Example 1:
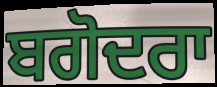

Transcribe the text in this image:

ਬਗੋਦਰਾ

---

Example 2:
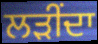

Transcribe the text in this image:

ਲੜੀਂਦਾ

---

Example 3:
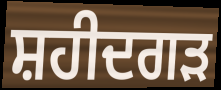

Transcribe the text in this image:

ਸ਼ਹੀਦਗੜ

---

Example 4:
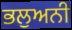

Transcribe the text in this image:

ਭਲੁਅਨੀ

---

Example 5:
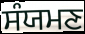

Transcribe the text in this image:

ਸੰਯਮਣ